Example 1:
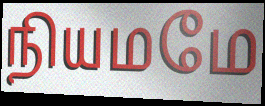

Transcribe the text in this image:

நியமமே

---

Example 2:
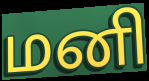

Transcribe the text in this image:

மனி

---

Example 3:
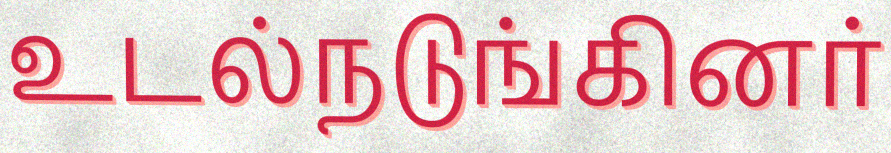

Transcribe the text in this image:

உடல்நடுங்கினர்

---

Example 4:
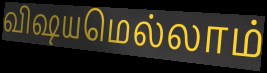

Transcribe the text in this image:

விஷயமெல்லாம்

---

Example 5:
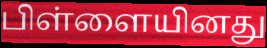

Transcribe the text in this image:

பிள்ளையினது